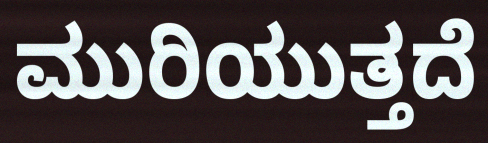
ಮುರಿಯುತ್ತದೆ